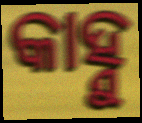
କାହ୍ନୁ